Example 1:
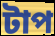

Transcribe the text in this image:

টাপ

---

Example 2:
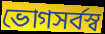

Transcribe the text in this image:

ভোগসর্বস্ব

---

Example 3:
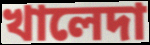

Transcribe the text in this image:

খালেদা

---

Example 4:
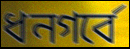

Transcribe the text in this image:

ধনগর্বে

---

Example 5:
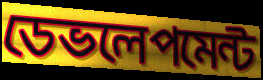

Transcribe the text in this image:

ডেভলেপমেন্ট